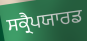
ਸਕ੍ਰੈਪਯਾਰਡ